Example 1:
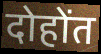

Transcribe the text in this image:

दोहोंत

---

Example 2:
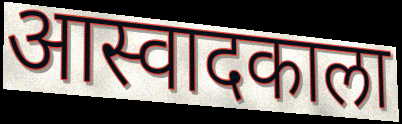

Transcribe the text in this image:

आस्वादकाला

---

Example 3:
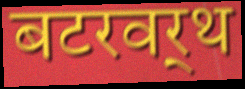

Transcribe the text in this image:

बटरवर्थ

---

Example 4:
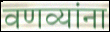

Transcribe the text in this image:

वणव्यांना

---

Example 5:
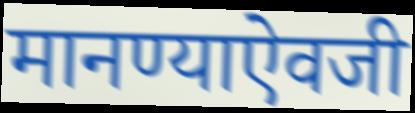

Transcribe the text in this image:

मानण्याऐवजी